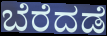
ಬೆರೆದಡೆ